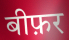
बीफ़र